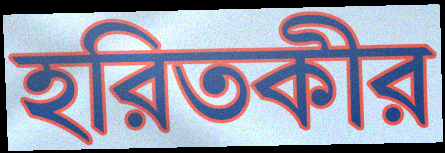
হরিতকীর